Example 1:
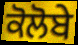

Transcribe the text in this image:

ਕੋਲੋਬੇ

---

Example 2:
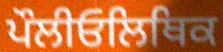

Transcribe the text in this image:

ਪੌਲੀਓਲਿਥਿਕ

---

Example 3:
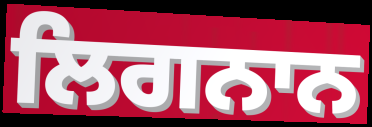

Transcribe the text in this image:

ਲਿਗਨਾਨ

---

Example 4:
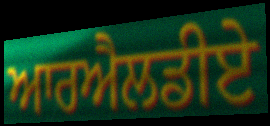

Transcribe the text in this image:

ਆਰਐਲਡੀਏ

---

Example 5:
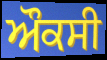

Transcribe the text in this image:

ਔਕਸੀ